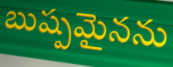
బుష్పమైనను